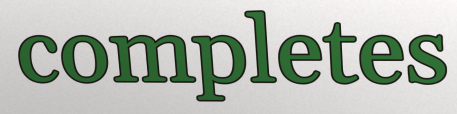
completes